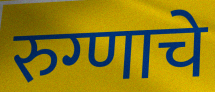
रुग्‍णाचे